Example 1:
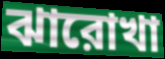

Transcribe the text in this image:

ঝারোখা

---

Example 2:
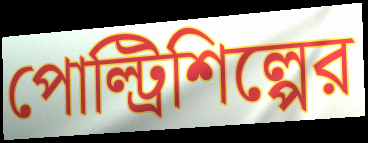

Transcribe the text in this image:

পোল্ট্রিশিল্পের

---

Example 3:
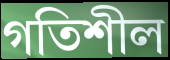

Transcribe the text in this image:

গতিশীল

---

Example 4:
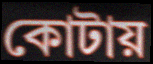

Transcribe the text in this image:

কোটায়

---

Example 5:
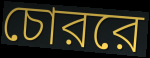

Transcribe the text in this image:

চোররে